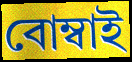
বোম্বাই